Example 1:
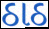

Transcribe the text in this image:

ઠાઠ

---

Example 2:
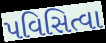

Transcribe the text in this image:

પવિસિત્વા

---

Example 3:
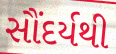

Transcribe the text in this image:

સૌંદર્યથી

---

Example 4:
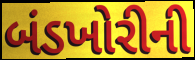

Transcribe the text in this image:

બંડખોરીની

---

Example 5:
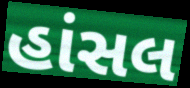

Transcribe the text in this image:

હાંસલ